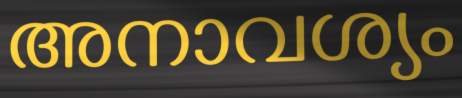
അനാവശ്യം